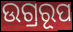
ଉଗ୍ରରୂପ